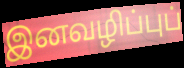
இனவழிப்புப்